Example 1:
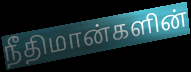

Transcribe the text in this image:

நீதிமான்களின்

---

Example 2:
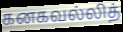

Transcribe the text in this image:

கனகவல்லித்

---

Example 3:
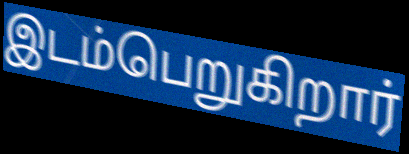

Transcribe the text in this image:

இடம்பெறுகிறார்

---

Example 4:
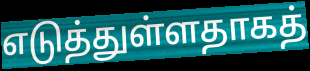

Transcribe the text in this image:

எடுத்துள்ளதாகத்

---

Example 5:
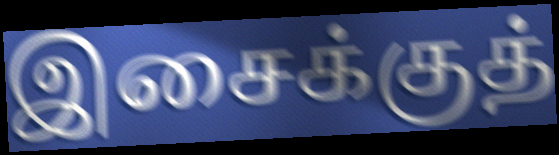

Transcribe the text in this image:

இசைக்குத்